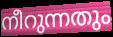
നീറുന്നതും